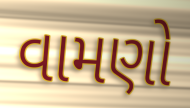
વામણો